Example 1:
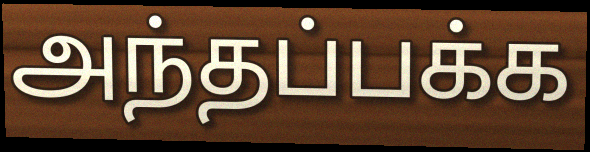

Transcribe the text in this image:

அந்தப்பக்க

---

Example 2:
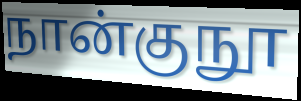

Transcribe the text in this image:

நான்குநூ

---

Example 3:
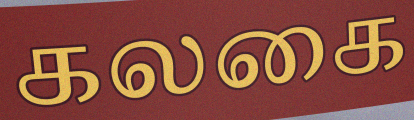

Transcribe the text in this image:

கலகை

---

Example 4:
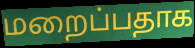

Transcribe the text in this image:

மறைப்பதாக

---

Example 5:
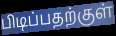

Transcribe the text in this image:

பிடிப்பதற்குள்